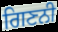
ਗਿਣਨੀ